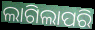
ଲାଗିଲାପରି